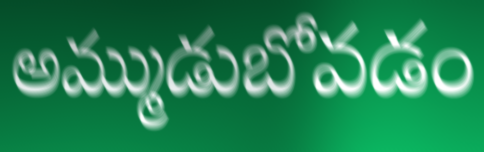
అమ్ముడుబోవడం